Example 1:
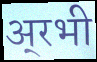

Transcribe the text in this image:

अ्रभी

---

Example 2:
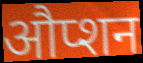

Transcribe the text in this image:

औप्शन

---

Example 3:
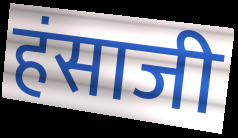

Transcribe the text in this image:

हंसाजी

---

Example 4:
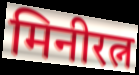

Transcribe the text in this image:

मिनीरत्न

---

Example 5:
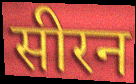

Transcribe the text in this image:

सीरन